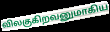
விலகுகிறவனுமாகிய